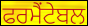
ਫਰਮੈਂਟੇਬਲ